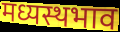
मध्यस्थभाव